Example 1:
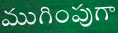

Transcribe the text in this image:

ముగింపుగా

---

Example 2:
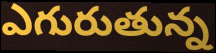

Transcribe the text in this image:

ఎగురుతున్న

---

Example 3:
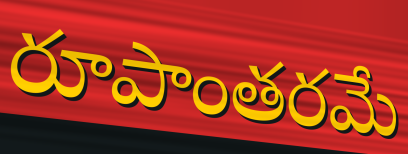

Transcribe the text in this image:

రూపాంతరమే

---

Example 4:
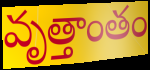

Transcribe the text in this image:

వృత్తాంతం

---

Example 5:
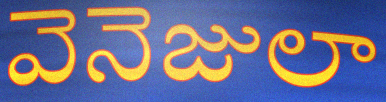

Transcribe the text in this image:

వెనెజులా